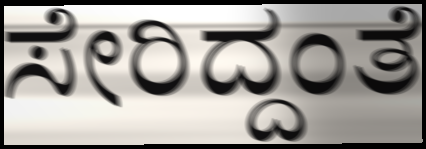
ಸೇರಿದ್ದಂತೆ